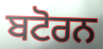
ਬਟੋਰਨ